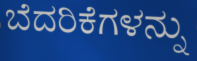
ಬೆದರಿಕೆಗಳನ್ನು